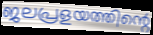
ജലപ്രളയത്തിന്റെ